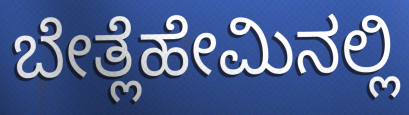
ಬೇತ್ಲೆಹೇಮಿನಲ್ಲಿ